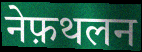
नेफ़थलन